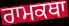
ਰਾਮਕਥਾ